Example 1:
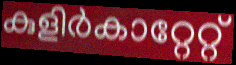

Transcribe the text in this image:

കുളിർകാറ്റേറ്റ്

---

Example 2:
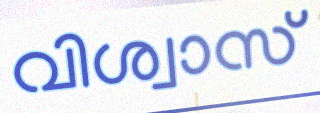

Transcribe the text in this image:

വിശ്വാസ്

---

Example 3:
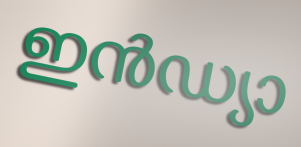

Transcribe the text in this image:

ഇൻഡ്യാ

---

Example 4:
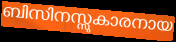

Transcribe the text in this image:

ബിസിനസ്സുകാരനായ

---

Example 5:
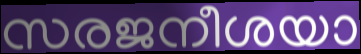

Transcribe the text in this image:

സരജനീശയാ